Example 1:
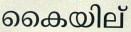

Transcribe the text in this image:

കൈയില്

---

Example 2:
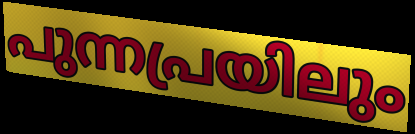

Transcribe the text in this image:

പുന്നപ്രയിലും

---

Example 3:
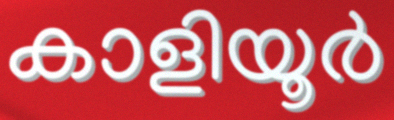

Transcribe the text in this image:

കാളിയൂർ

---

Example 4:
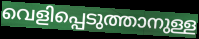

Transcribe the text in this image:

വെളിപ്പെടുത്താനുള്ള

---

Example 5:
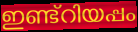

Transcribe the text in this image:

ഇണ്ട്റിയപ്പം